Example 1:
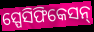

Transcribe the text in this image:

ସ୍ପେସିଫିକେସନ୍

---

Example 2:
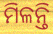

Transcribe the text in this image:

ମିଳନ୍ତି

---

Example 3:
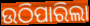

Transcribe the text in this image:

ଉଠିପାରିଲା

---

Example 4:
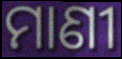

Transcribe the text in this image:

ମାଣୀ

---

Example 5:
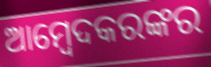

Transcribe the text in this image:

ଆମ୍ବେଦକରଙ୍କର